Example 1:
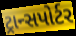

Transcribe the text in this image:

ટ્રાન્સપોર્ટર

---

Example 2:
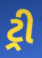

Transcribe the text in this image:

ટ્રી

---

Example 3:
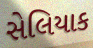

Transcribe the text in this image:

સેલિયાક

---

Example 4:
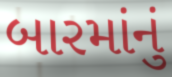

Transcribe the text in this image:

બારમાંનું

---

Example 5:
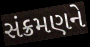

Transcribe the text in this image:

સંક્રમણને